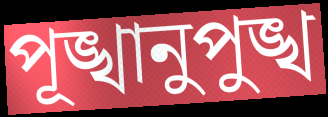
পূঙ্খানুপুঙ্খ